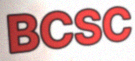
BCSC